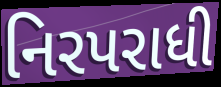
નિરપરાધી